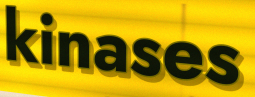
kinases